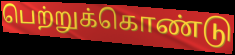
பெற்றுக்கொண்டு